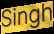
Singh